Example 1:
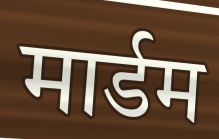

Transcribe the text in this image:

मार्डम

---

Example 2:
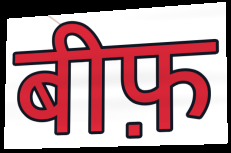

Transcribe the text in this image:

बीफ़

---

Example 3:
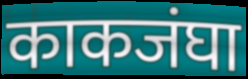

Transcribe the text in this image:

काकजंघा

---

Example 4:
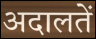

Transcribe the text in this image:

अदालतें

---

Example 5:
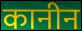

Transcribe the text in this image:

कानीन